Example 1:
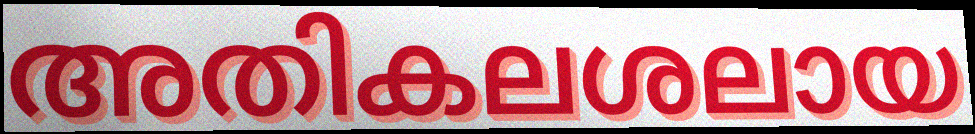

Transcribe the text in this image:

അതികലശലായ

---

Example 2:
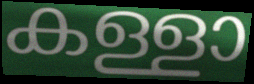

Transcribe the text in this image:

കള്ളാ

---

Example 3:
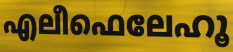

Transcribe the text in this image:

എലീഫെലേഹൂ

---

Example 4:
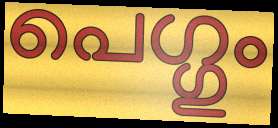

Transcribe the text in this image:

പെഗ്ഗും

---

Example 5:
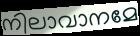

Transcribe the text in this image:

നിലാവാനമേ